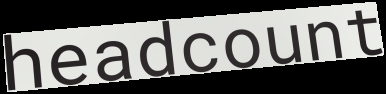
headcount